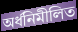
অর্ধনিমীলিত